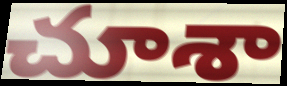
చూశా